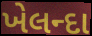
ખેલન્દા